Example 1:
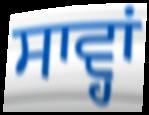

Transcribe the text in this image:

ਸਾਵ੍ਹਾਂ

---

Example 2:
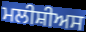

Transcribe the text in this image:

ਮਲੀਸ਼ੀਅਸ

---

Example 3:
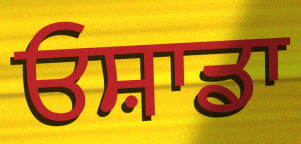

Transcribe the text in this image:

ਓਸ਼ਾਡਾ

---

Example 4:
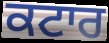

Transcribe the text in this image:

ਕਟਾਰ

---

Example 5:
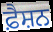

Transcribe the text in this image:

ਫ਼ੈਸ਼ਨ